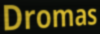
Dromas